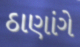
ઠાણાંગે